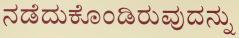
ನಡೆದುಕೊಂಡಿರುವುದನ್ನು